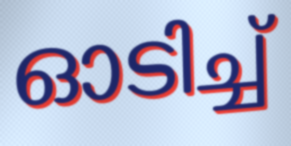
ഓടിച്ച്